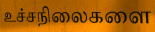
உச்சநிலைகளை